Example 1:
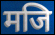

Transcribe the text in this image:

मजि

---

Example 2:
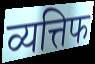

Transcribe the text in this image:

व्यत्तिफ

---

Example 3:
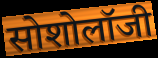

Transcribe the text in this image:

सोशोलॉजी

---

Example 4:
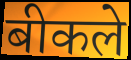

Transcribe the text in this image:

बीकले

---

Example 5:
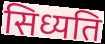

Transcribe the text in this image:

सिध्यति